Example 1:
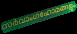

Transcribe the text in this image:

സർവാംഗഹോമങ്ങളും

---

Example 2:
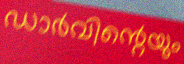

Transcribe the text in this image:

ഡാർവിന്റെയും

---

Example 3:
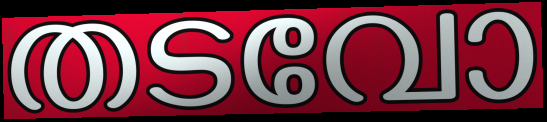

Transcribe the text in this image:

തടവോ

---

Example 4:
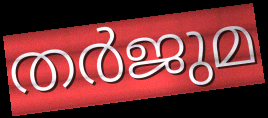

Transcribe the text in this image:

തർജുമ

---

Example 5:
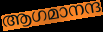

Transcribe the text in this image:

ആഗമാനന്ദ